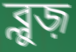
ব্লুজ়